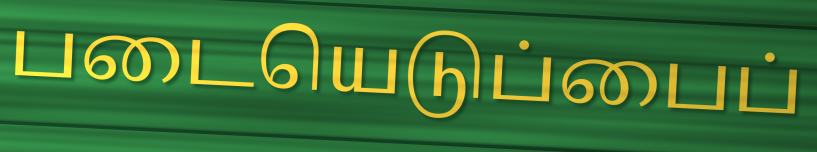
படையெடுப்பைப்